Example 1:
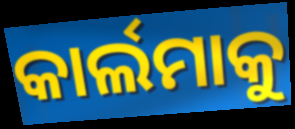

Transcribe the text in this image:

କାର୍ଲମାକୁ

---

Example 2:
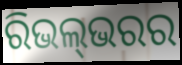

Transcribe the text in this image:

ରିଭଲ୍‍ଭରର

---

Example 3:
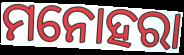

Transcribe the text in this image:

ମନୋହରା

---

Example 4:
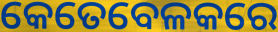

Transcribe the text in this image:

କେତେବେଳକରେ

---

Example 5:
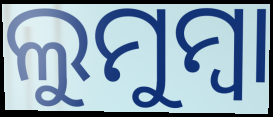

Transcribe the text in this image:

ଲୁମୁମ୍ବା